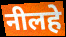
नीलहे